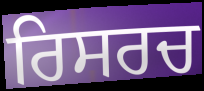
ਰਿਸਰਚ